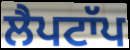
ਲੈਪਟਾੱਪ